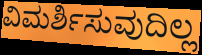
ವಿಮರ್ಶಿಸುವುದಿಲ್ಲ